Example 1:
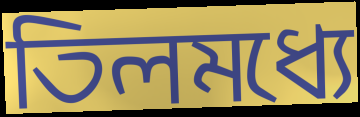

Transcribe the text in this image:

তিলমধ্যে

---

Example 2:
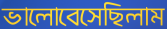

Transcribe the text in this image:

ভালোবেসেছিলাম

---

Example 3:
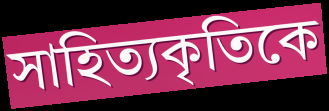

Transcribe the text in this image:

সাহিত্যকৃতিকে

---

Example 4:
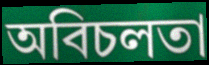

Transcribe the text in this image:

অবিচলতা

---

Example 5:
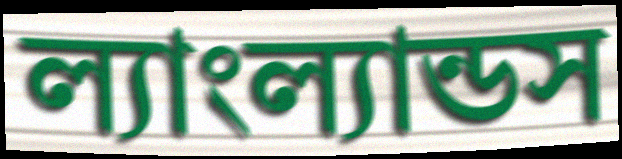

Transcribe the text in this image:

ল্যাংল্যান্ডস